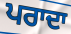
ਪਰਾਦਾ